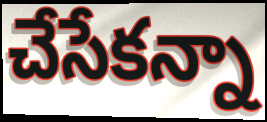
చేసేకన్నా